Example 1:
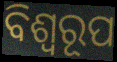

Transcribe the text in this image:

ବିଶ୍ଵରୂପ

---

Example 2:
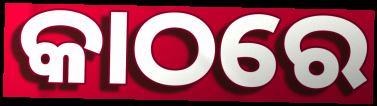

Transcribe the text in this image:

କାଠରେ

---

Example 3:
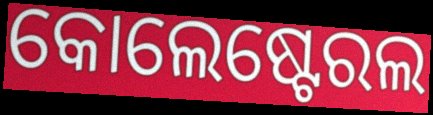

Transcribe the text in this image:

କୋଲେଷ୍ଟେରଲ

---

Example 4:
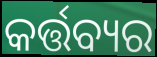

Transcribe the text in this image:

କର୍ତ୍ତବ୍ୟର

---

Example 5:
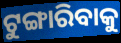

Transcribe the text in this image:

ଟୁଙ୍ଗାରିବାକୁ